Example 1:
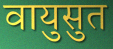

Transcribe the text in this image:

वायुसुत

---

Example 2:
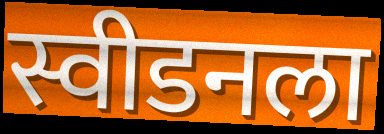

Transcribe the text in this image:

स्वीडनला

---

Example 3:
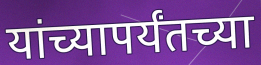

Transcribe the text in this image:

यांच्यापर्यंतच्या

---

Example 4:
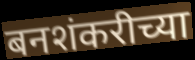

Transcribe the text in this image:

बनशंकरीच्या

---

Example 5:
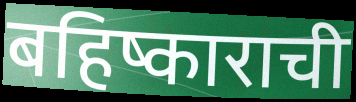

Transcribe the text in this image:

बहिष्काराची